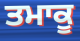
ਤਮਾਕੂ